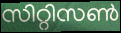
സിറ്റിസൺ